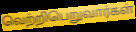
வெற்றிபெறுவார்கள்